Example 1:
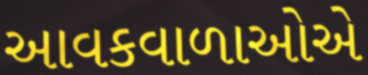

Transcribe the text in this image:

આવકવાળાઓએ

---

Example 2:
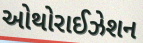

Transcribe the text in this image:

ઓથોરાઈઝેશન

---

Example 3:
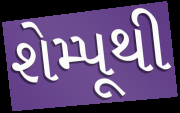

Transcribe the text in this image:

શેમ્પૂથી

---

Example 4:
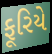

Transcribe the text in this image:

ફૂરિયે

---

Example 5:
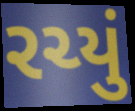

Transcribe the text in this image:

રચ્યું